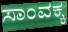
ಸಾಂವಕ್ಕ